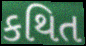
કથિત